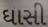
ઘાસી